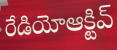
రేడియోఆక్టివ్